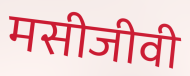
मसीजीवी